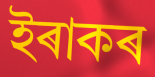
ইৰাকৰ